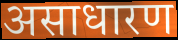
असाधारण